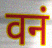
वनं